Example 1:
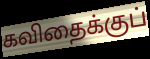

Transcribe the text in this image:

கவிதைக்குப்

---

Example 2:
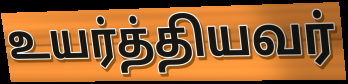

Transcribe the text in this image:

உயர்த்தியவர்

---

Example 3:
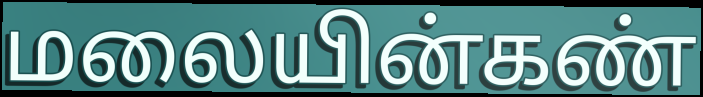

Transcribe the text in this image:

மலையின்கண்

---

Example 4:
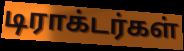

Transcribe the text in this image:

டிராக்டர்கள்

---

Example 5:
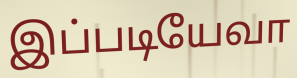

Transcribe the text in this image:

இப்படியேவா